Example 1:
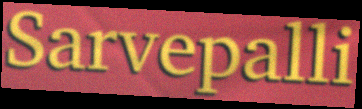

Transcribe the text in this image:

Sarvepalli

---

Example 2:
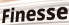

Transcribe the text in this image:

Finesse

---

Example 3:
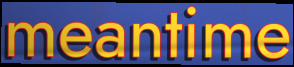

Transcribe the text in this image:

meantime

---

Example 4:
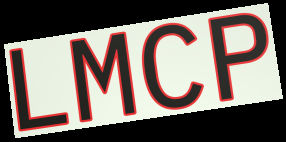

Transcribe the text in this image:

LMCP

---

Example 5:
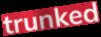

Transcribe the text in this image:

trunked